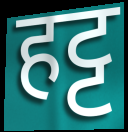
हट्ट